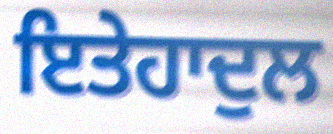
ਇਤੇਹਾਦੁਲ